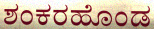
ಶಂಕರಹೊಂಡ